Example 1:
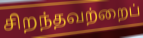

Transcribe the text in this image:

சிறந்தவற்றைப்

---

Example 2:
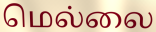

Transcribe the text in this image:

மெல்லை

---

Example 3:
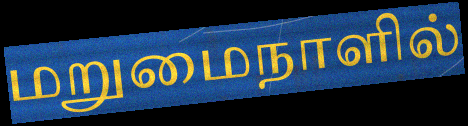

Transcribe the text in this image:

மறுமைநாளில்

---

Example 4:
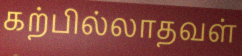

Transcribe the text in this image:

கற்பில்லாதவள்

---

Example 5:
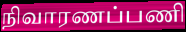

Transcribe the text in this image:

நிவாரணப்பணி